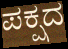
ಪಕ್ಷದ